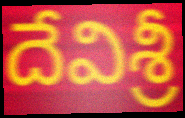
దేవిశ్రీ